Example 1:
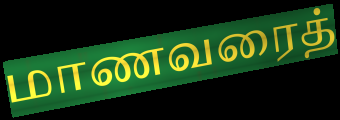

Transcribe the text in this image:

மாணவரைத்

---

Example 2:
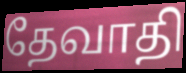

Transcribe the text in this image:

தேவாதி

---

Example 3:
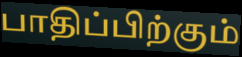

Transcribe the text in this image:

பாதிப்பிற்கும்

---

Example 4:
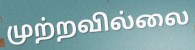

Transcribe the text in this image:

முற்றவில்லை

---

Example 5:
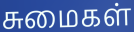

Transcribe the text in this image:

சுமைகள்